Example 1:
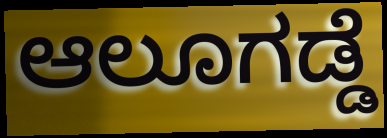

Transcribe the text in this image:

ಆಲೂಗಡ್ಡೆ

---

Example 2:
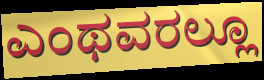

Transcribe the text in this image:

ಎಂಥವರಲ್ಲೂ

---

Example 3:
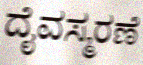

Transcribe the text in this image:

ದೈವಸ್ಮರಣೆ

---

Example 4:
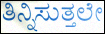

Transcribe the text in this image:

ತಿನ್ನಿಸುತ್ತಲೇ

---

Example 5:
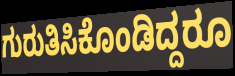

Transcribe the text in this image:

ಗುರುತಿಸಿಕೊಂಡಿದ್ದರೂ